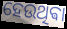
ହେଉଥିଵା